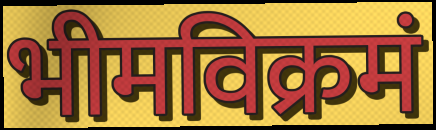
भीमविक्रमं